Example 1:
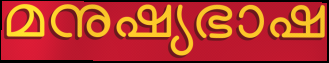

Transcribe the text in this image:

മനുഷ്യഭാഷ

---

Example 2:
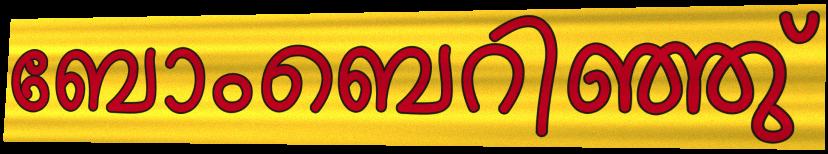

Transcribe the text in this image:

ബോംബെറിഞ്ഞു്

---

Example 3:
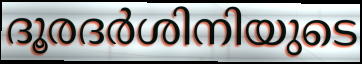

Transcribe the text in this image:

ദൂരദർശിനിയുടെ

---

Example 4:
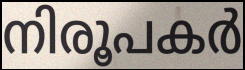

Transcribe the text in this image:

നിരൂപകർ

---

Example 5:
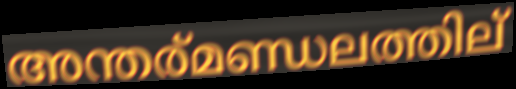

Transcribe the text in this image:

അന്തര്മണ്ഡലത്തില്